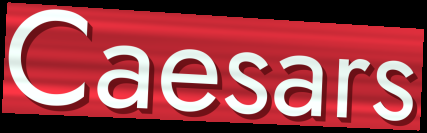
Caesars